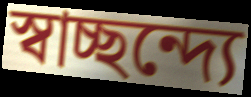
স্বাচ্ছন্দ্যে